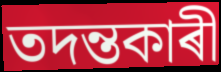
তদন্তকাৰী